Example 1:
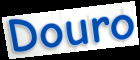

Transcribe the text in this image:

Douro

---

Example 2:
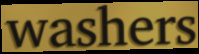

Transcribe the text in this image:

washers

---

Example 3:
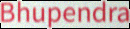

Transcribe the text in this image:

Bhupendra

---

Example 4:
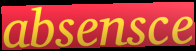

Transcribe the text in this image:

absensce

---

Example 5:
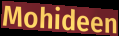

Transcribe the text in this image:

Mohideen